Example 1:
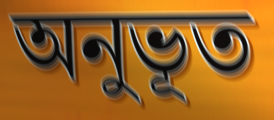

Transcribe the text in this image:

অনুভূত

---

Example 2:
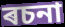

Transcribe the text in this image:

ৰচনা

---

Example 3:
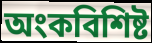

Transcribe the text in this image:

অংকবিশিষ্ট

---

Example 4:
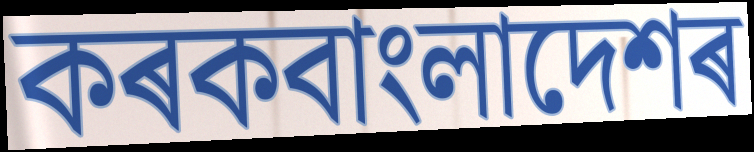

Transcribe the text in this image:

কৰকবাংলাদেশৰ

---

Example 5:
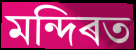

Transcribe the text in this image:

মন্দিৰত